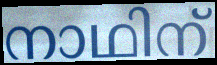
നാഥിന്